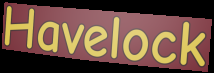
Havelock